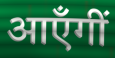
आएँगीं